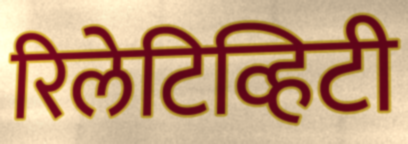
रिलेटिव्हिटी